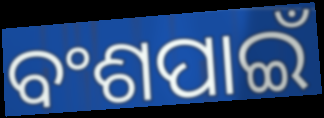
ବଂଶପାଇଁ